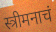
स्त्रीमनाचं